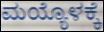
ಮಯ್ಯೊಳಕ್ಕೆ